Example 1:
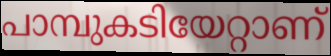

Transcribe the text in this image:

പാമ്പുകടിയേറ്റാണ്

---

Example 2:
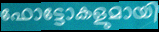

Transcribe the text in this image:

ഫോട്ടോകളുമായി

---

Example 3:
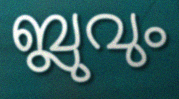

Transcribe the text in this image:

ബ്ലുവും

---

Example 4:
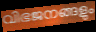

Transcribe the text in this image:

വിഭജനങ്ങളും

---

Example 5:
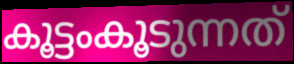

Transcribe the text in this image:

കൂട്ടംകൂടുന്നത്